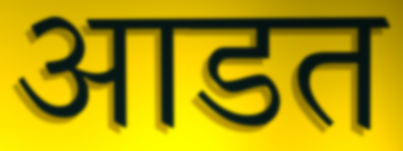
आडत